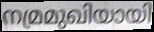
നമ്രമുഖിയായി